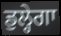
ਡੁਲ੍ਹੇਗਾ